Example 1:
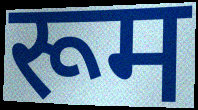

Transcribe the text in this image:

रूम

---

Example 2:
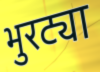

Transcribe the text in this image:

भुरट्या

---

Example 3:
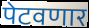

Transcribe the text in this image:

पेटवणार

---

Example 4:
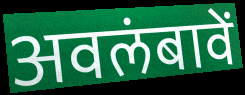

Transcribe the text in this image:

अवलंबावें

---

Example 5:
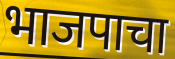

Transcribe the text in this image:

भाजपाचा